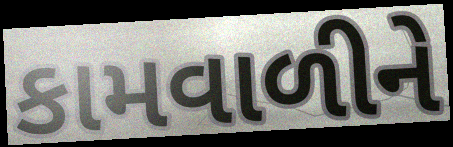
કામવાળીને